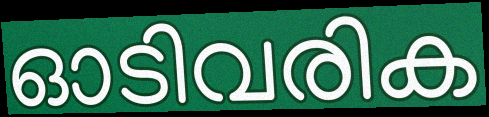
ഓടിവരിക